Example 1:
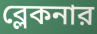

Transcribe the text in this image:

ব্লেকনার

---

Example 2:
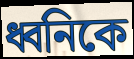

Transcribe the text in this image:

ধ্বনিকে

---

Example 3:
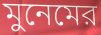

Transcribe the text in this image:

মুনেমের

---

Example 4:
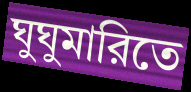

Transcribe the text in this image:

ঘুঘুমারিতে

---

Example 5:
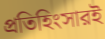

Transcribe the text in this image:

প্রতিহিংসারই